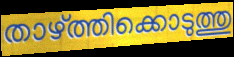
താഴ്ത്തിക്കൊടുത്തു